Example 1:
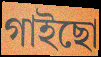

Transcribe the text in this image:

গাইছো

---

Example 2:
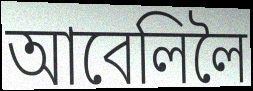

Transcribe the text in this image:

আবেলিলৈ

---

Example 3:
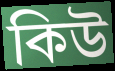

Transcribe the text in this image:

কিউ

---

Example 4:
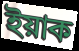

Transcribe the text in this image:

ইয়াক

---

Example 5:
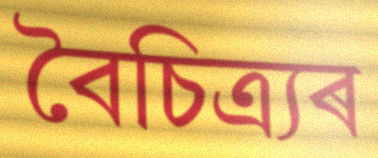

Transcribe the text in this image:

বৈচিত্ৰ্যৰ